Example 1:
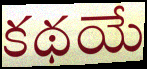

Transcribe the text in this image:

కథయే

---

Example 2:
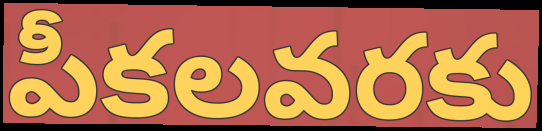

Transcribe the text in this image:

పీకలవరకు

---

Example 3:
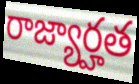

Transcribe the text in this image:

రాజ్యార్హత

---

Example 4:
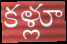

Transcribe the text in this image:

కళ్లూ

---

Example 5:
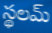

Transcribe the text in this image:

స్థలమ్